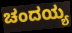
ಚಂದಯ್ಯ